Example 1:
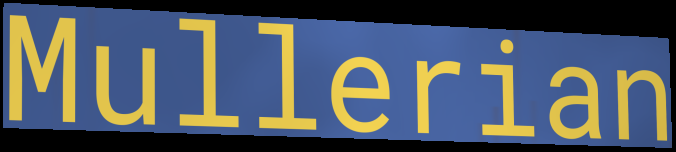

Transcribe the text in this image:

Mullerian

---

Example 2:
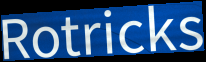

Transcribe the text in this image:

Rotricks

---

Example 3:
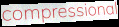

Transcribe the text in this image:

compressional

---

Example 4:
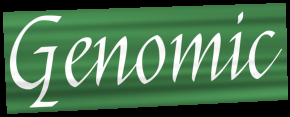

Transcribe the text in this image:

Genomic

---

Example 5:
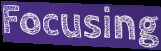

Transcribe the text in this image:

Focusing